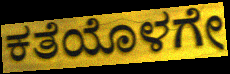
ಕತೆಯೊಳಗೇ